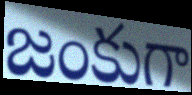
జంకుగా